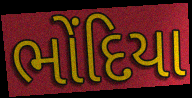
ભોંદિયા